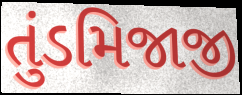
તુંડમિજાજી